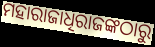
ମହାରାଜାଧିରାଜଙ୍କଠାରୁ